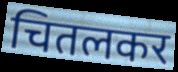
चितलकर